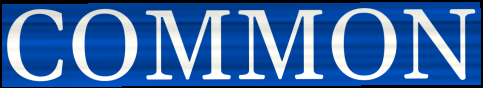
COMMON